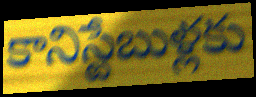
కానిస్టేబుళ్లకు